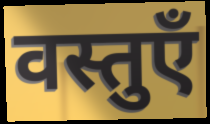
वस्तुएँ